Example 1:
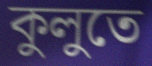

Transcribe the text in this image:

কুলুতে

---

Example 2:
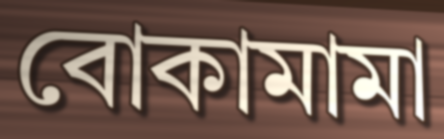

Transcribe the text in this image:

বোকামামা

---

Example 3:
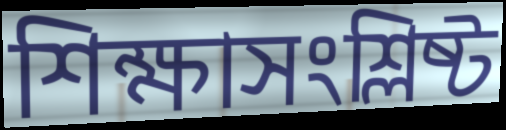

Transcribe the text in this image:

শিক্ষাসংশ্লিষ্ট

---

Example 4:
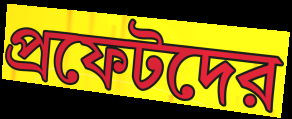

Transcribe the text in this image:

প্রফেটদের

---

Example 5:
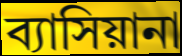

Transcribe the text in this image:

ব্যাসিয়ানা